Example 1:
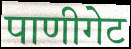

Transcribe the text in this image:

पाणीगेट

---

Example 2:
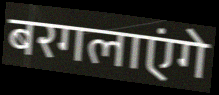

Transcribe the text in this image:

बरगलाएंगे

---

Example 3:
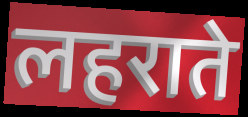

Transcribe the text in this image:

लहराते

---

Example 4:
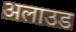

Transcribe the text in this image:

अलाउड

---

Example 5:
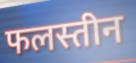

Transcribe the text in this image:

फलस्तीन